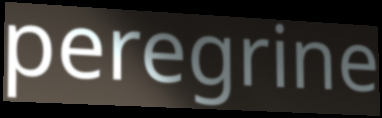
peregrine